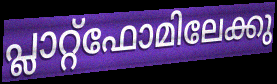
പ്ലാറ്റ്ഫോമിലേക്കു